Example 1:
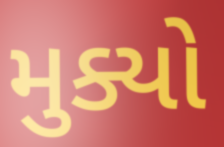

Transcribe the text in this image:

મુક્યો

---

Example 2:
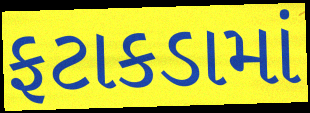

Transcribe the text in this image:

ફટાકડામાં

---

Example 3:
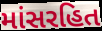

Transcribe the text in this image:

માંસરહિત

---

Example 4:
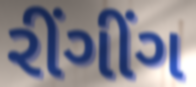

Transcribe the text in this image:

રીંગીંગ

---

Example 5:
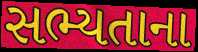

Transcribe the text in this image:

સભ્યતાના